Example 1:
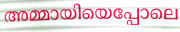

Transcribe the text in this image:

അമ്മായിയെപ്പോലെ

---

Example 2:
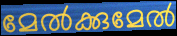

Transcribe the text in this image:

മേൽക്കുമേൽ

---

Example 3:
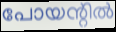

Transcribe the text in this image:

പോയന്റിൽ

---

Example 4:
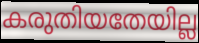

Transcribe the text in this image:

കരുതിയതേയില്ല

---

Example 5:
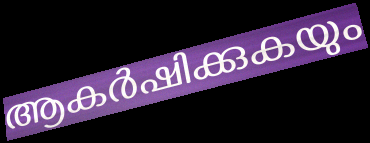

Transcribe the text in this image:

ആകർഷിക്കുകയും